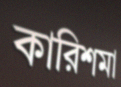
কারিশমা